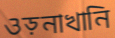
ওড়্নাখানি